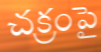
చక్రంపై